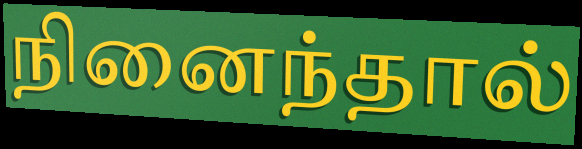
நினைந்தால்